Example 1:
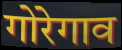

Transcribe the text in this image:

गोरेगाव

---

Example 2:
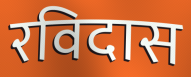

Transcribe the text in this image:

रविदास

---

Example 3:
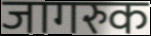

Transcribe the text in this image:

जागरुक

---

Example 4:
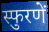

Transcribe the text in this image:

स्फुरणें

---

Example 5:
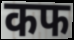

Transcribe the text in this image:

कफ